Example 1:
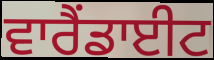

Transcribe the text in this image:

ਵਾਰੈਂਡਾਈਟ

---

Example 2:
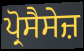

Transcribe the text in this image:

ਪ੍ਰੋਸੈਸੇਜ਼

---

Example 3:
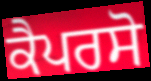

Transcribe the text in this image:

ਕੈਪਰਸੋ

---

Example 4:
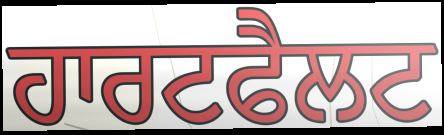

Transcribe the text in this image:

ਹਾਰਟਫੈਲਟ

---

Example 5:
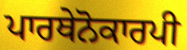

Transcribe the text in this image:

ਪਾਰਥੇਨੋਕਾਰਪੀ